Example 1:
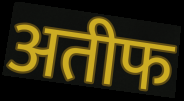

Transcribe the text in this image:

अतीफ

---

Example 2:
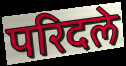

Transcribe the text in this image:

परिदले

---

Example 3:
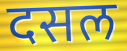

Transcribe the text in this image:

दसल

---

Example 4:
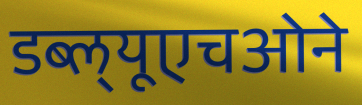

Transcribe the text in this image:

डब्ल्यूएचओने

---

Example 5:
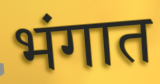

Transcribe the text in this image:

भंगात